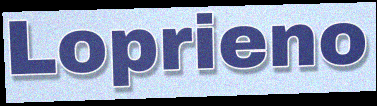
Loprieno